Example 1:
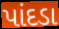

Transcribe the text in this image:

પાંદડા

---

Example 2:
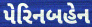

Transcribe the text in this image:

પેરિનબહેન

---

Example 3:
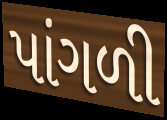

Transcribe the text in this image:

પાંગળી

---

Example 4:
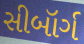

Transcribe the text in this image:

સીબૉર્ગ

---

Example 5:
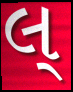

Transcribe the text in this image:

લ્